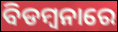
ବିଡମ୍ବନାରେ